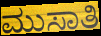
ಮುಸಾತಿ